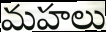
మహలు